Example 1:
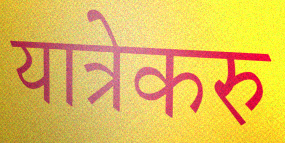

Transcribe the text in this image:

यात्रेकरु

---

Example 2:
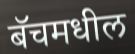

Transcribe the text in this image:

बॅचमधील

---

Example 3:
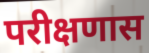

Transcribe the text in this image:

परीक्षणास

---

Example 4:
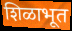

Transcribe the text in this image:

शिळाभूत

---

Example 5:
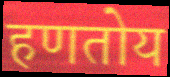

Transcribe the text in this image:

हणतोय